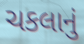
ચકલાનું